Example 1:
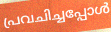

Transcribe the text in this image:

പ്രവചിച്ചപ്പോൾ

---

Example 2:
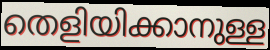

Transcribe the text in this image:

തെളിയിക്കാനുള്ള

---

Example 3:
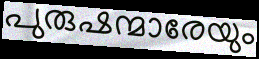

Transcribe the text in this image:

പുരുഷന്മാരേയും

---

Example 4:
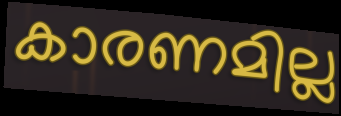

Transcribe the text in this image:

കാരണമില്ല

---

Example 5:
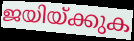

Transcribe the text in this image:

ജയിയ്ക്കുക